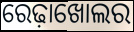
ରେଢ଼ାଖୋଲର